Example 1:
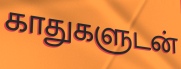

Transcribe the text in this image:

காதுகளுடன்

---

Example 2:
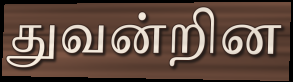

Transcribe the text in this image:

துவன்றின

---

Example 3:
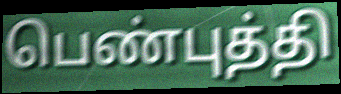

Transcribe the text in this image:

பெண்புத்தி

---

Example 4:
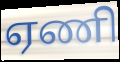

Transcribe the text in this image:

ஏணி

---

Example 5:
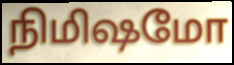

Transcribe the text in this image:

நிமிஷமோ